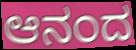
ಆನಂದ